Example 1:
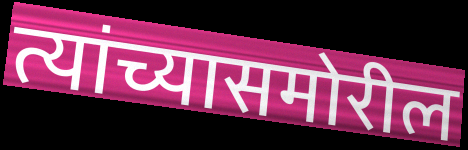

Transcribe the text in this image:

त्यांच्यासमोरील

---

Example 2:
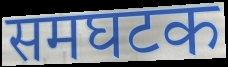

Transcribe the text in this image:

समघटक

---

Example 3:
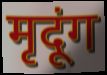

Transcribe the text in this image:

मृदूंग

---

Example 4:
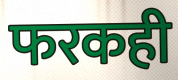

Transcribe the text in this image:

फरकही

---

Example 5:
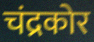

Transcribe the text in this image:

चंद्रकोर